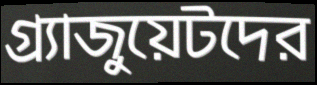
গ্র্যাজুয়েটদের